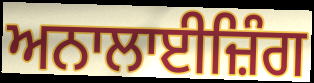
ਅਨਾਲਾਈਜ਼ਿੰਗ